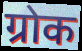
ग्रोक